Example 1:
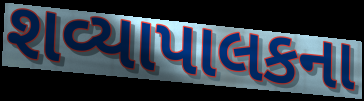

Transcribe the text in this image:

શવ્યાપાલકના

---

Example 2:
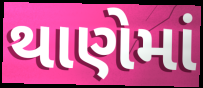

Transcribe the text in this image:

થાણેમાં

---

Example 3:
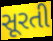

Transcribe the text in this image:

સૂરતી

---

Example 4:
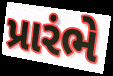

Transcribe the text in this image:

પ્રારંભે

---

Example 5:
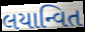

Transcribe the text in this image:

લયાન્વિત